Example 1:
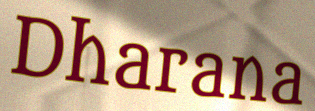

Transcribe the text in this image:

Dharana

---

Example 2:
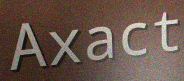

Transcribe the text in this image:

Axact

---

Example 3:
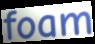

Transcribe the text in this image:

foam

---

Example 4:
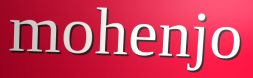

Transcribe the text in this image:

mohenjo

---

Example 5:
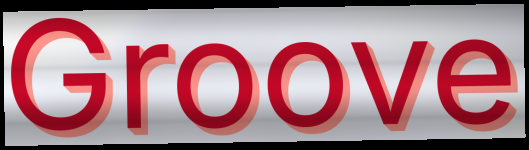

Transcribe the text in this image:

Groove